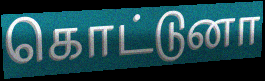
கொட்டுனா